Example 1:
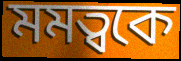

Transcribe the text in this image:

মমত্বকে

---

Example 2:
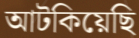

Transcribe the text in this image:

আটকিয়েছি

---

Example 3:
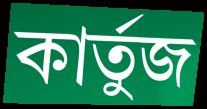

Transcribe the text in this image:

কার্তুজ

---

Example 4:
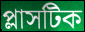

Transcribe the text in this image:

প্লাসটিক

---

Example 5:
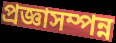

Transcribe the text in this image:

প্রজ্ঞাসম্পন্ন